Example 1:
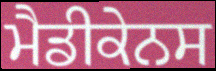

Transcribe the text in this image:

ਮੈਡੀਕੇਨਸ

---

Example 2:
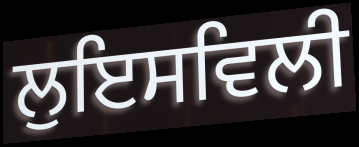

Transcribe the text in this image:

ਲੁਇਸਵਿਲੀ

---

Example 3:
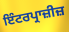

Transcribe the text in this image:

ਇੰਟਰਪ੍ਰਾਜ਼ੀਜ਼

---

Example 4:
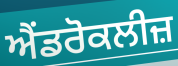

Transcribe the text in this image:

ਐਂਡਰੋਕਲੀਜ਼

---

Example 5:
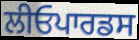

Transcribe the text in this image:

ਲੀਓਪਾਰਡਸ